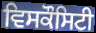
ਵਿਸਕੌਸਿਟੀ